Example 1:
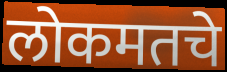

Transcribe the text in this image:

लोकमतचे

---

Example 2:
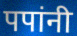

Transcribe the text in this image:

पपांनी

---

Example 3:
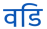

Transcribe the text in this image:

वडि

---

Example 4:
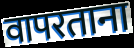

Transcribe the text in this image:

वापरताना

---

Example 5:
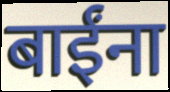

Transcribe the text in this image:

बाईंना